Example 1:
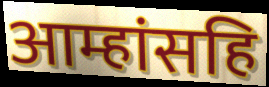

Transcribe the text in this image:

आम्हांसहि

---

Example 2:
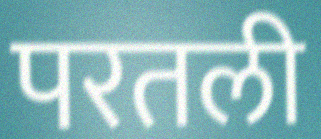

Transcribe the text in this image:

परतली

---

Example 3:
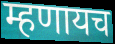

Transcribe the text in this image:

म्हणायच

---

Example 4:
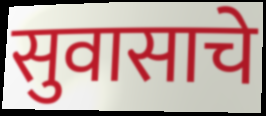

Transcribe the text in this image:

सुवासाचे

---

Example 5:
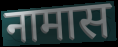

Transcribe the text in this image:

नामास